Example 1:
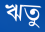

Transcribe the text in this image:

ঋতু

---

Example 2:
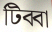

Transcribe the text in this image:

টিব্বা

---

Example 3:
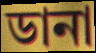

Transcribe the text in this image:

ডানা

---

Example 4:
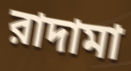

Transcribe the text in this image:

রাদামা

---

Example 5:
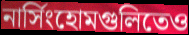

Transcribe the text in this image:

নার্সিংহোমগুলিতেও